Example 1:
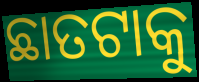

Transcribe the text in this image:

ଛାତଟାକୁ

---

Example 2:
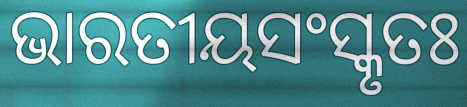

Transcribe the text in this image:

ଭାରତୀୟସଂସ୍କୃତଃ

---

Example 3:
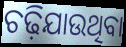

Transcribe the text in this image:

ଚଢ଼ିଯାଉଥିବା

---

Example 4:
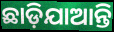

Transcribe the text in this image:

ଛାଡ଼ିଯାଆନ୍ତି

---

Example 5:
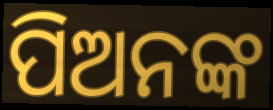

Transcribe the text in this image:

ପିଅନଙ୍କ